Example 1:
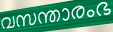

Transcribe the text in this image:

വസന്താരംഭ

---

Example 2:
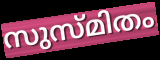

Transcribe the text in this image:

സുസ്മിതം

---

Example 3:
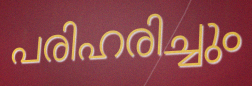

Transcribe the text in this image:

പരിഹരിച്ചും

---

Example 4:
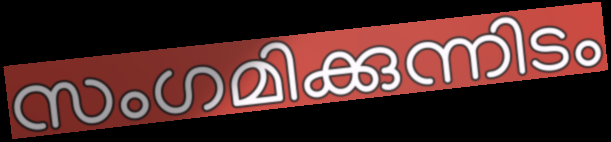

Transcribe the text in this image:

സംഗമിക്കുന്നിടം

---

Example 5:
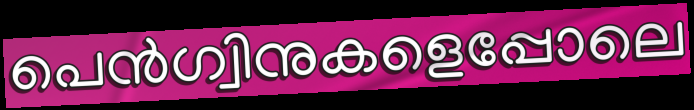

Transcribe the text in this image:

പെൻഗ്വിനുകളെപ്പോലെ